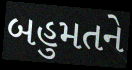
બહુમતને